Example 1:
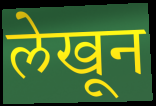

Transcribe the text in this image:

लेखून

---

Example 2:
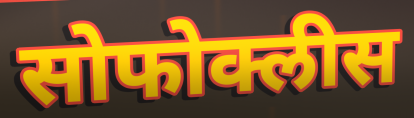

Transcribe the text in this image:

सोफोक्लीस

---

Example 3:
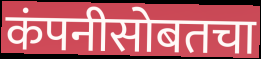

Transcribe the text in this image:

कंपनीसोबतचा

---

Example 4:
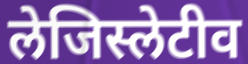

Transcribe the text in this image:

लेजिस्लेटीव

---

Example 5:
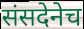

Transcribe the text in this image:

संसदेनेच